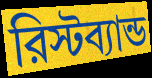
রিস্টব্যান্ড